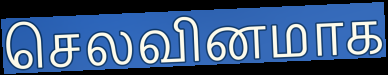
செலவினமாக